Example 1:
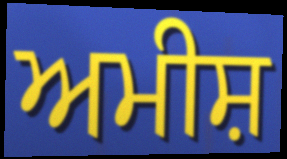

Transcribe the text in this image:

ਅਮੀਸ਼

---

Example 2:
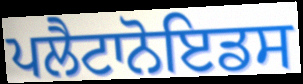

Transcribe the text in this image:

ਪਲੈਟਾਨੋਇਡਸ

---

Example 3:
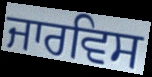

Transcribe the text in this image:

ਜਾਰਵਿਸ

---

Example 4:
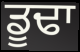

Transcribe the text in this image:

ਡੂਢਾ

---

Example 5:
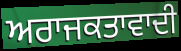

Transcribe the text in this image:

ਅਰਾਜਕਤਾਵਾਦੀ